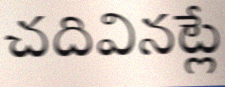
చదివినట్లే